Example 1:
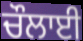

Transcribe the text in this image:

ਚੌਲਾਈ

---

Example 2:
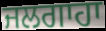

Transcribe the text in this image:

ਜਲਗਾਹਾ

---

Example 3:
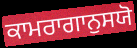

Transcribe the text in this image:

ਕਾਮਰਾਗਾਨੁਸਯੋ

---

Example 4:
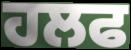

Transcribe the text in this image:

ਹਲਫ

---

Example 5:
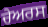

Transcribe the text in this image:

ਚੇਅਰਸ